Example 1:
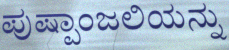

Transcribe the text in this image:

ಪುಷ್ಪಾಂಜಲಿಯನ್ನು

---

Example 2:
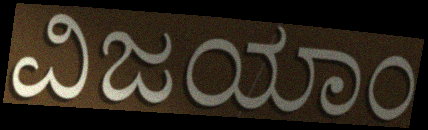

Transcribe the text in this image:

ವಿಜಯಾಂ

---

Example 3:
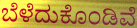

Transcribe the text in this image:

ಬೆಳೆದುಕೊಂಡಿವೆ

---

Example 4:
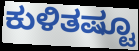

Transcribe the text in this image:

ಕುಳಿತಷ್ಟೂ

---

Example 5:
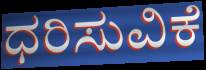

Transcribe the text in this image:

ಧರಿಸುವಿಕೆ